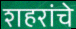
शहरांचे